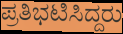
ಪ್ರತಿಭಟಿಸಿದ್ದರು